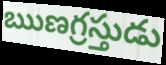
ఋణగ్రస్తుడు